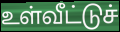
உள்வீட்டுச்